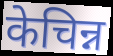
केचिन्न